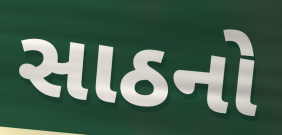
સાઠનો